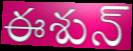
ఈశున్